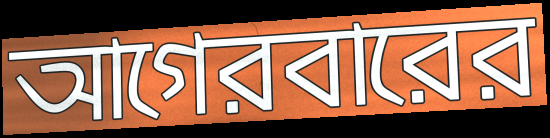
আগেরবারের